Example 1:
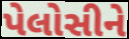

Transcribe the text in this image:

પેલોસીને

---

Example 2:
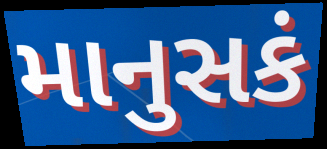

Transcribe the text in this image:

માનુસકં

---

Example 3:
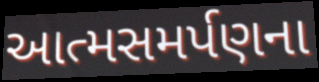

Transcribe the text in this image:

આત્મસમર્પણના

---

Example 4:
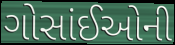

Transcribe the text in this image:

ગોસાંઈઓની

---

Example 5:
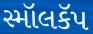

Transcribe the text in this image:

સ્મૉલકૅપ